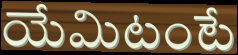
యేమిటంటే